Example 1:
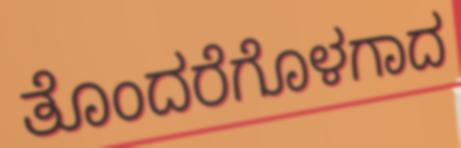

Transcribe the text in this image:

ತೊಂದರೆಗೊಳಗಾದ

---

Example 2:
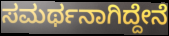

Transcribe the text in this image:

ಸಮರ್ಥನಾಗಿದ್ದೇನೆ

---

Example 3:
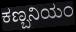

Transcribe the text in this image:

ಕಣ್ಬನಿಯಂ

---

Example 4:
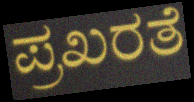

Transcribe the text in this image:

ಪ್ರಖರತೆ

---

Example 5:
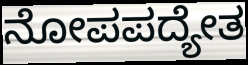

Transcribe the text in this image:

ನೋಪಪದ್ಯೇತ